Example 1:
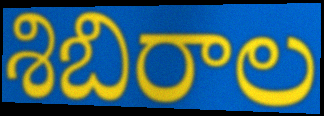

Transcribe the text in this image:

శిబిరాల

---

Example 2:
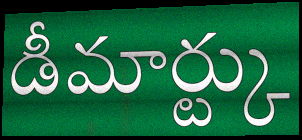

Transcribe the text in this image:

డీమార్ట్కు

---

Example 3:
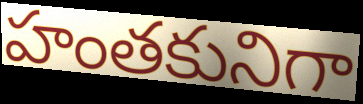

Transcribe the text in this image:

హంతకునిగా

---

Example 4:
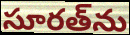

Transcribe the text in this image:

సూరత్‌ను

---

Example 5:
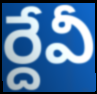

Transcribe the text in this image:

ర్దేవీ